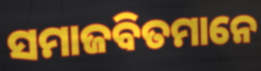
ସମାଜବିତମାନେ